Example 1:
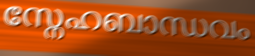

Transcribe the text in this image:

സ്നേഹബാന്ധവം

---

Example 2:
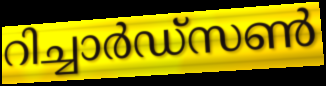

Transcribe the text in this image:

റിച്ചാർഡ്സൺ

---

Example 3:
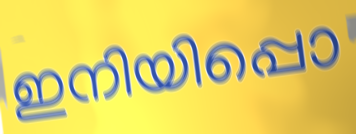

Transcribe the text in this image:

ഇനിയിപ്പൊ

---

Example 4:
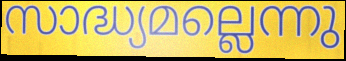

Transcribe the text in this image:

സാദ്ധ്യമല്ലെന്നു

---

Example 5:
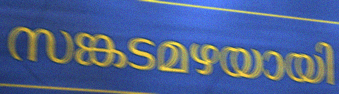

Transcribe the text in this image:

സങ്കടമഴയായി